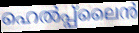
ഹെൽപ്പ്ലൈൻ